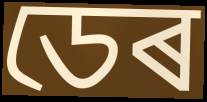
ডেৰ